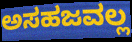
ಅಸಹಜವಲ್ಲ